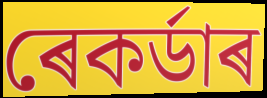
ৰেকৰ্ডাৰ